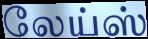
லேய்ஸ்